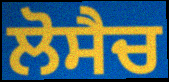
ਲੋਸੈਚ